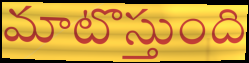
మాటొస్తుంది